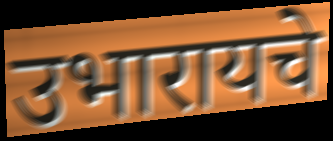
उभारायचे